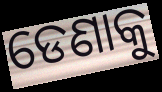
ଡେଣାକୁ